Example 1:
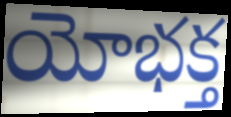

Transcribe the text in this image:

యోభక్త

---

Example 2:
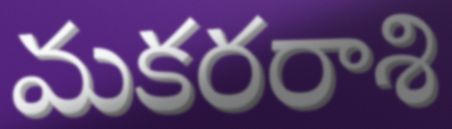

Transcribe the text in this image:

మకరరాశి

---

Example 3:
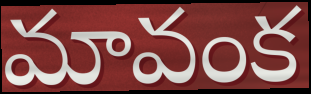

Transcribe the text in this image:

మావంక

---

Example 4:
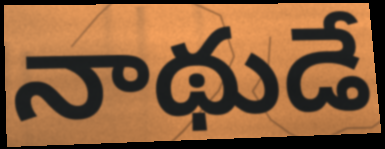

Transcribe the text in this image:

నాథుడే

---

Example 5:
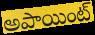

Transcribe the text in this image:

అపాయింట్